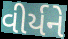
વીર્યને